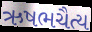
ઋષભચૈત્ય